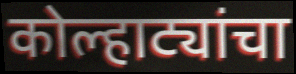
कोल्हाट्यांचा